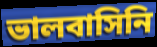
ভালবাসিনি